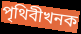
পৃথিবীখনক